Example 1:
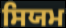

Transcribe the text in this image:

ਸਿਯਮ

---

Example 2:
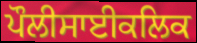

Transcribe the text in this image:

ਪੌਲੀਸਾਈਕਲਿਕ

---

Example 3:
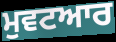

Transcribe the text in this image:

ਮੁਵਟਆਰ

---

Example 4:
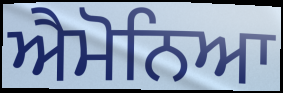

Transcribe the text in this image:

ਐਮੋਨਿਆ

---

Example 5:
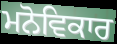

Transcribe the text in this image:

ਮਨੋਵਿਕਾਰ